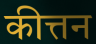
कीत्तन